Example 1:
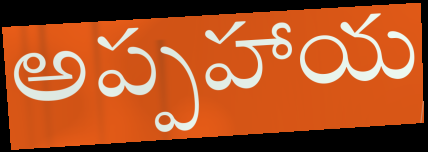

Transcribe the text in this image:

అప్పహాయ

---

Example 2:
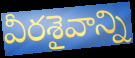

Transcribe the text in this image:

వీరశైవాన్ని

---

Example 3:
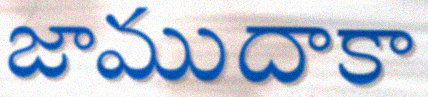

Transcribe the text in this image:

జాముదాకా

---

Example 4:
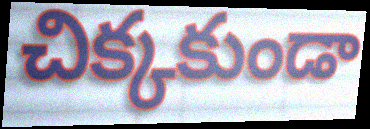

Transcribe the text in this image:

చిక్కకుండా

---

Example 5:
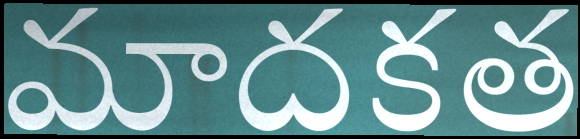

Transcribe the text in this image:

మాదకత